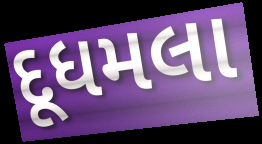
દૂધમલા